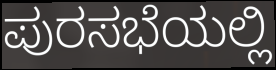
ಪುರಸಭೆಯಲ್ಲಿ